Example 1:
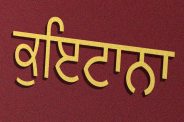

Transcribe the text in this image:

ਕੁਇਟਾਨਾ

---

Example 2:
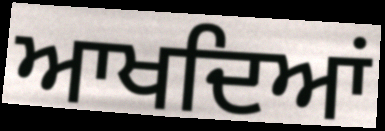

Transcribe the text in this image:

ਆਖਦਿਆਂ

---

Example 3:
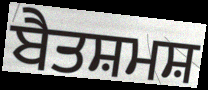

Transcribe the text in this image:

ਬੈਤਸ਼ਮਸ਼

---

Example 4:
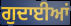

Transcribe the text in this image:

ਗੁਦਾਈਆਂ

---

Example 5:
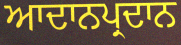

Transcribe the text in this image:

ਆਦਾਨਪ੍ਰਦਾਨ